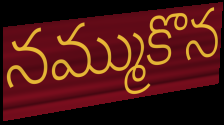
నమ్ముకొన